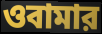
ওবামার